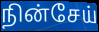
நின்சேய்